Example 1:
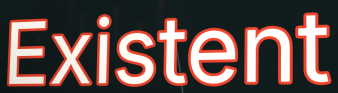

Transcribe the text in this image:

Existent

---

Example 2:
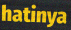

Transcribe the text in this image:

hatinya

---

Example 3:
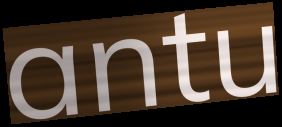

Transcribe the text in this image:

antu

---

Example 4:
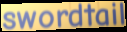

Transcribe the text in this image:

swordtail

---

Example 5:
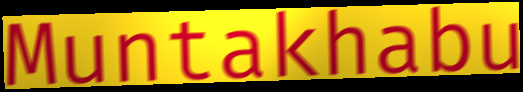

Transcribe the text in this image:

Muntakhabu